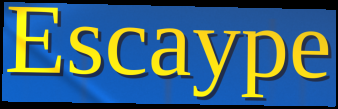
Escaype